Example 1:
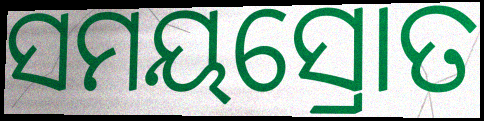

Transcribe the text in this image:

ସମୟସ୍ରୋତ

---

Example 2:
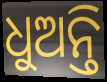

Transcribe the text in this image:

ଧୁଅନ୍ତି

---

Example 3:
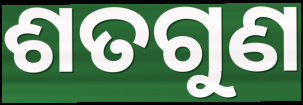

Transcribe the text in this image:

ଶତଗୁଣ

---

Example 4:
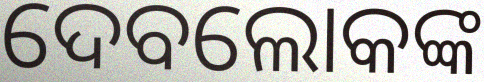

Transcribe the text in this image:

ଦେବଲୋକଙ୍କ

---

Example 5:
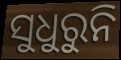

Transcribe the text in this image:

ସୁଧୁରୁନି